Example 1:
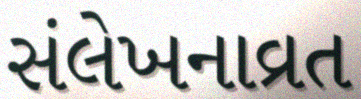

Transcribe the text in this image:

સંલેખનાવ્રત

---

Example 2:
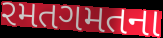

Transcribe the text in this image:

રમતગમતના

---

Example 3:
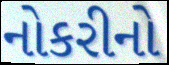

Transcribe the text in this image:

નોકરીનો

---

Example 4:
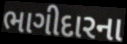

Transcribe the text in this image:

ભાગીદારના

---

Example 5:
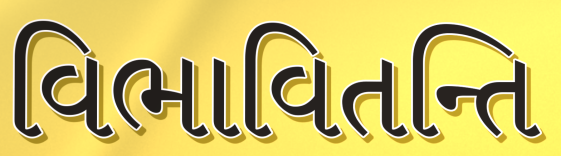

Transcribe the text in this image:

વિભાવિતન્તિ